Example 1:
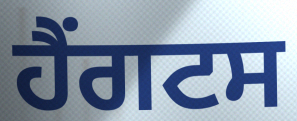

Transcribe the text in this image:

ਹੈਂਗਟਸ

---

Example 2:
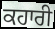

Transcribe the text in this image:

ਕਹਾਰੀ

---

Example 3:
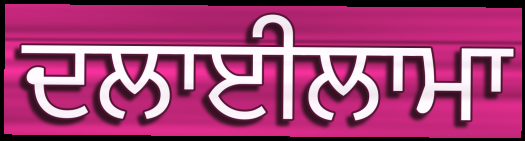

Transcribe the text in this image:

ਦਲਾਈਲਾਮਾ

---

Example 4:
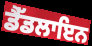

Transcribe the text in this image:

ਡੈੱਡਲਾਇਨ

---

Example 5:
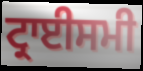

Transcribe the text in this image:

ਟ੍ਰਾਈਸਮੀ